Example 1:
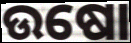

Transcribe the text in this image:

ଉଷୋ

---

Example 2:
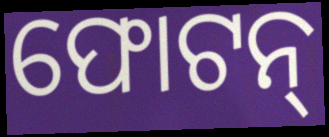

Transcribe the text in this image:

ଫୋଟନ୍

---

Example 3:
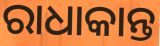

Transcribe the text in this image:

ରାଧାକାନ୍ତ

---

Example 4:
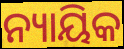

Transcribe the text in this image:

ନ୍ୟାୟିକ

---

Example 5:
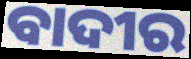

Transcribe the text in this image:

ବାଦୀର